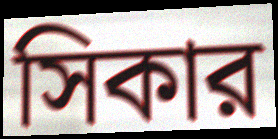
সিকার